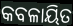
କବଳାୟିତ